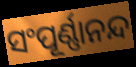
ସଂପୂର୍ଣ୍ଣାନନ୍ଦ